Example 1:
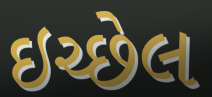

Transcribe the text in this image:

ઇચ્છેલ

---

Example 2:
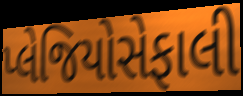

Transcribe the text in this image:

પ્લેજિયોસેફાલી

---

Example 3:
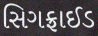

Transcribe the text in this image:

સિગફ્રાઈડ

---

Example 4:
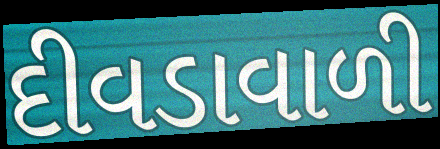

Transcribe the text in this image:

દીવડાવાળી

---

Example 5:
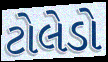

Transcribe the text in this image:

ટોલેડો